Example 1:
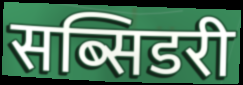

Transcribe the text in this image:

सब्सिडरी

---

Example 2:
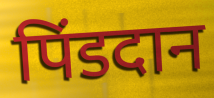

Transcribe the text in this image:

पिंडदान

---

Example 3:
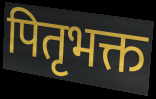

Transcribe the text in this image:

पितृभक्त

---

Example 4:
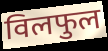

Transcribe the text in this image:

विलफुल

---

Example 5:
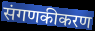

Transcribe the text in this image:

संगणकीकरण